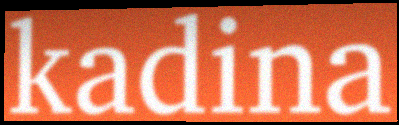
kadina